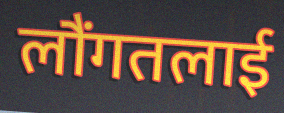
लौंगतलाई